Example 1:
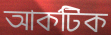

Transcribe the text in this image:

আর্কটিক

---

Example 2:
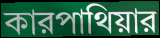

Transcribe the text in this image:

কারপাথিয়ার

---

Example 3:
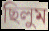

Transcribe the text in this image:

ছিলুম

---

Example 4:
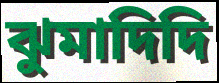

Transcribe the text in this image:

ঝুমাদিদি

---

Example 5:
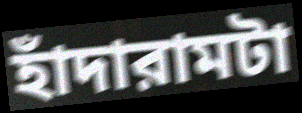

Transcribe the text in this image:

হাঁদারামটা